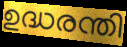
ഉദ്ധരന്തി